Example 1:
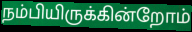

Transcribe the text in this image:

நம்பியிருக்கின்றோம்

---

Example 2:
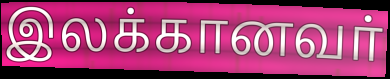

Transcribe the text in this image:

இலக்கானவர்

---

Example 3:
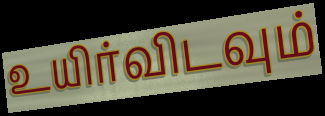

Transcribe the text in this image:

உயிர்விடவும்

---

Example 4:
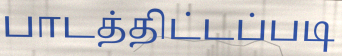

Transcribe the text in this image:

பாடத்திட்டப்படி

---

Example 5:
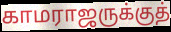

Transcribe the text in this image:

காமராஜருக்குத்